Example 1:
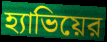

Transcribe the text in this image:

হ্যাভিয়ের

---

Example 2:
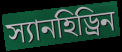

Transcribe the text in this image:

স্যানহিড্রিন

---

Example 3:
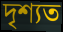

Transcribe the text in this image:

দৃশ্যত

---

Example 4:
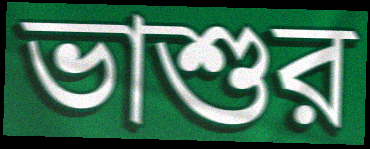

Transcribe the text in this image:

ভাশুর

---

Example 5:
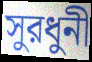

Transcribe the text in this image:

সুরধুনী